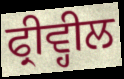
ਫ੍ਰੀਵ੍ਹੀਲ